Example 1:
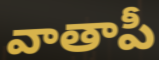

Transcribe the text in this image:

వాతాపీ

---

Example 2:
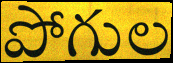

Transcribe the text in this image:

పోగుల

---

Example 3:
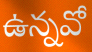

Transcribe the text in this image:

ఉన్నవో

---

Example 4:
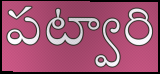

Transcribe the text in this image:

పట్వారి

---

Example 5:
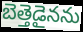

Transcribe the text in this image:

బెత్తెడైనను